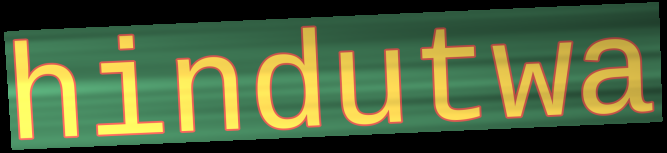
hindutwa